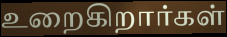
உறைகிறார்கள்